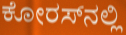
ಕೋರಸ್‌ನಲ್ಲಿ